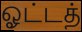
ஓட்டத்